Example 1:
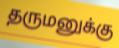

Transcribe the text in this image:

தருமனுக்கு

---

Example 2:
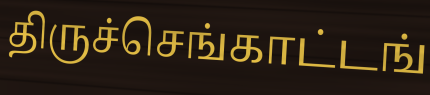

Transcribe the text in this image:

திருச்செங்காட்டங்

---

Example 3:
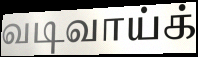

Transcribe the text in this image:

வடிவாய்க்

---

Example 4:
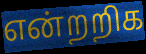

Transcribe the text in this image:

என்றறிக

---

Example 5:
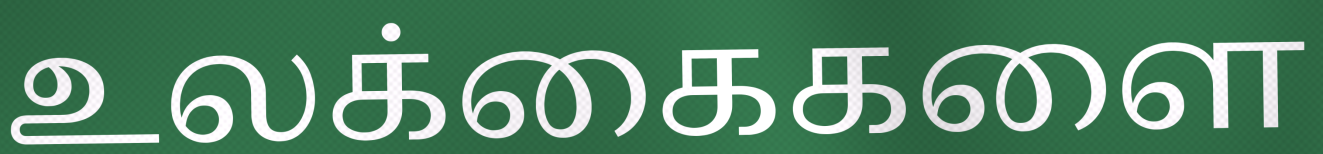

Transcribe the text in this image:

உலக்கைகளை